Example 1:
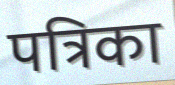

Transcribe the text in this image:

पत्रिका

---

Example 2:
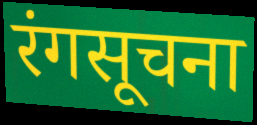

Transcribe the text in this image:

रंगसूचना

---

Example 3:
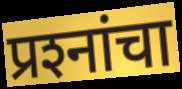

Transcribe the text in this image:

प्रश्‍नांचा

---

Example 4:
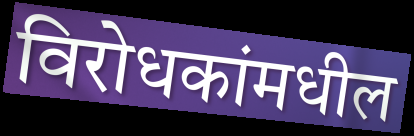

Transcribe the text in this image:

विरोधकांमधील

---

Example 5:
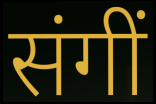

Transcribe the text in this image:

संगीं